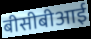
बीसीबीआई